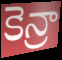
కెన్రా